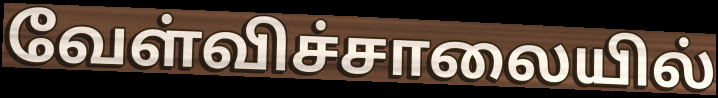
வேள்விச்சாலையில்